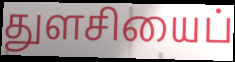
துளசியைப்